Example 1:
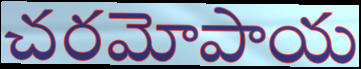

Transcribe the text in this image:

చరమోపాయ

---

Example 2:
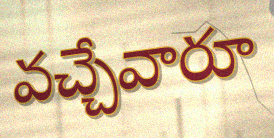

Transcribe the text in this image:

వచ్చేవారూ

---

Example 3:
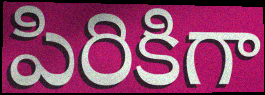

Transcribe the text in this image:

పిరికిగా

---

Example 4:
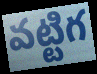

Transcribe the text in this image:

వట్టిగ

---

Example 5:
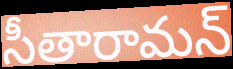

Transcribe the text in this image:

సీతారామన్